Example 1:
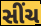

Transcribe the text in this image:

સીંચ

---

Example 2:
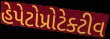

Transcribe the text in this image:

હેપેટોપ્રોટેક્ટીવ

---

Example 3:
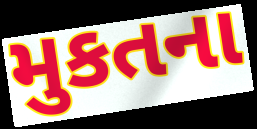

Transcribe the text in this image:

મુકતના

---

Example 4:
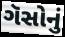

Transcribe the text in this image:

ગૅસોનું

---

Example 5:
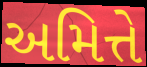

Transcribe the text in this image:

અમિત્તે